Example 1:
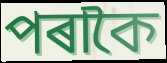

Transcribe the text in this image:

পৰাকৈ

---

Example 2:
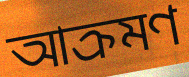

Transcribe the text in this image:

আক্ৰমণ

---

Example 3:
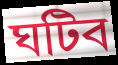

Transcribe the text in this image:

ঘটিব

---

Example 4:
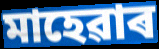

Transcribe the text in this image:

মাহেৱাৰ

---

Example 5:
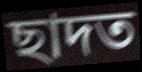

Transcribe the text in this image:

ছাদত